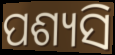
ପଶ୍ୟସି